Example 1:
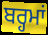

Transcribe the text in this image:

ਬਰ੍ਹਮਾਂ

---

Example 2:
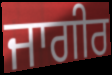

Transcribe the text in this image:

ਜਾਗੀਰ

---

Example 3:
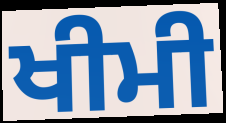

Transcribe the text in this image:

ਖੀਮੀ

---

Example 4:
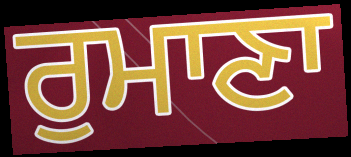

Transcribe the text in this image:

ਰੁਮਾਣਾ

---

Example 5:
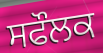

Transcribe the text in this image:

ਸਫੌਲਕ